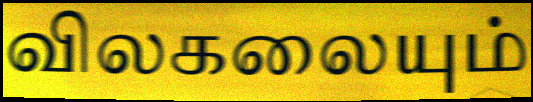
விலகலையும்